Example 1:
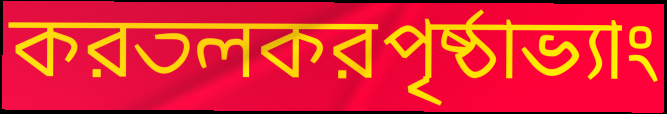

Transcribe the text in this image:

করতলকরপৃষ্ঠাভ্যাং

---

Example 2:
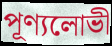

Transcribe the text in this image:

পূণ্যলোভী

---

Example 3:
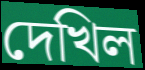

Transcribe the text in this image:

দেখিল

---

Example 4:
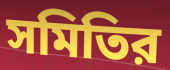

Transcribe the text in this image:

সমিতির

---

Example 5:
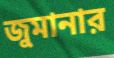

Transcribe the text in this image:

জুমানার